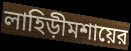
লাহিড়ীমশায়ের